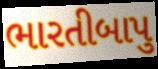
ભારતીબાપુ